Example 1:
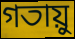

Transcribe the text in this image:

গতায়ু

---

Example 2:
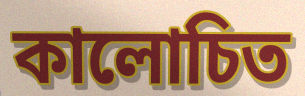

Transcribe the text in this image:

কালোচিত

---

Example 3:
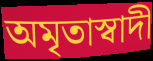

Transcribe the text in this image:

অমৃতাস্বাদী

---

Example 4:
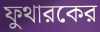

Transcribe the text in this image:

ফুথারকের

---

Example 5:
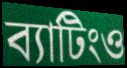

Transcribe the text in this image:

ব্যাটিংও